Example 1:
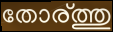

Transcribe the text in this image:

തോര്ത്തു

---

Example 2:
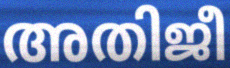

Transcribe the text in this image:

അതിജീ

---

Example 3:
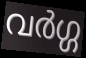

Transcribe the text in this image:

വർഗ്ഗ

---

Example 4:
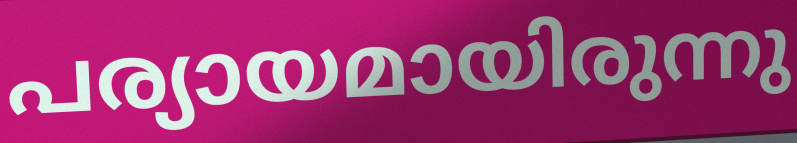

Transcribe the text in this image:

പര്യായമായിരുന്നു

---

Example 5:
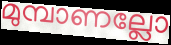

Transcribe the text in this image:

മുമ്പാണല്ലോ